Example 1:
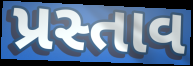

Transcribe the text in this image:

પ્રસ્તાવ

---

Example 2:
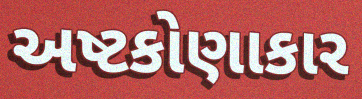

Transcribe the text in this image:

અષ્ટકોણાકાર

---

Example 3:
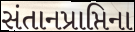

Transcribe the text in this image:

સંતાનપ્રાપ્તિના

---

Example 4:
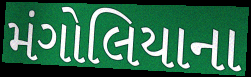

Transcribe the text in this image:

મંગોલિયાના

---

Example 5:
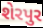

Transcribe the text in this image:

શેરપુર